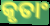
କୃତାଂ